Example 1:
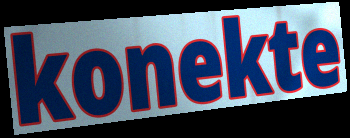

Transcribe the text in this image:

konekte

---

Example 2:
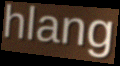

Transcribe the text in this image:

hlang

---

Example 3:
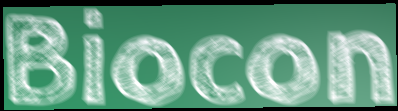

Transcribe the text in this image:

Biocon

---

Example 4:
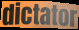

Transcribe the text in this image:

dictator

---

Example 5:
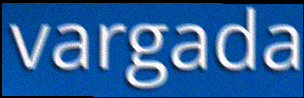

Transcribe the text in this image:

vargada